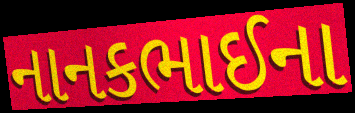
નાનકભાઈના